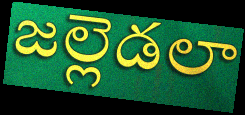
జల్లెడలా